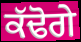
ਕੱਢੋਗੇ